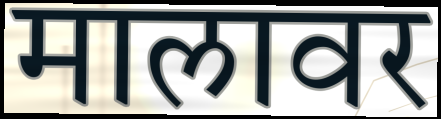
मालावर